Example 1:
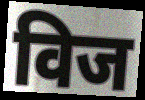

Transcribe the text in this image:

विज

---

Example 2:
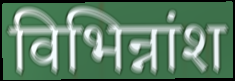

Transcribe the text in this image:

विभिन्नांश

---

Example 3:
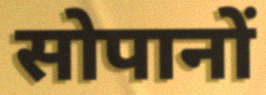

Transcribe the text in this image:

सोपानों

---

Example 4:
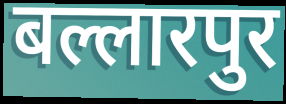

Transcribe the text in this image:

बल्लारपुर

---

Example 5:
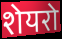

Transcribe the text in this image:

शेयरो